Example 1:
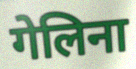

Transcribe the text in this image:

गेलिना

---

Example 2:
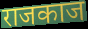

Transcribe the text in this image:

राजकाज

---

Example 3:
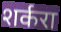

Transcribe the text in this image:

शर्करा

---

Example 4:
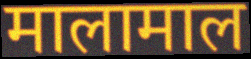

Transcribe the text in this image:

मालामाल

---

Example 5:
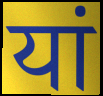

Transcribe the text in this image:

यां